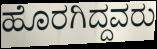
ಹೊರಗಿದ್ದವರು